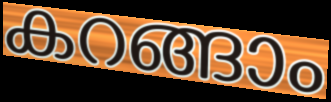
കറങ്ങാം